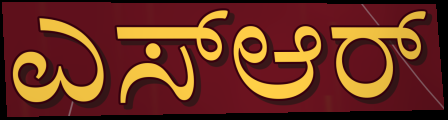
ಎಸ್ಆರ್